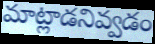
మాట్లాడనివ్వడం